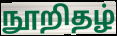
நூறிதழ்